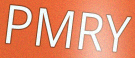
PMRY